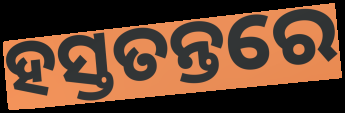
ହସ୍ତତନ୍ତରେ